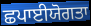
ਛਪਾਈਯੋਗਤਾ